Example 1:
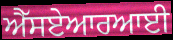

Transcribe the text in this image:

ਐੱਸਏਆਰਆਈ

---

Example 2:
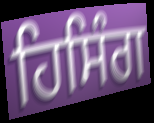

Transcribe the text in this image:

ਹਿਸਿੰਗ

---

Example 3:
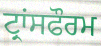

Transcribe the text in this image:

ਟ੍ਰਾਂਸਫੌਰਮ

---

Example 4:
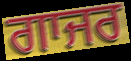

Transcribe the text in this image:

ਗਾਜਰ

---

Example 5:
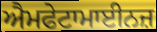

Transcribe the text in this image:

ਐਮਫੇਟਾਮਾਈਨਜ਼